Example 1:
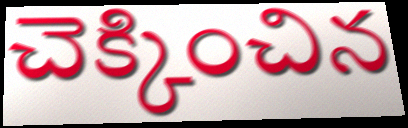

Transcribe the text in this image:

చెక్కించిన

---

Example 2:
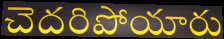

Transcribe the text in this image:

చెదరిపోయారు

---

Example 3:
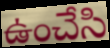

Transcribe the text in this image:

ఉంచేసి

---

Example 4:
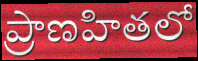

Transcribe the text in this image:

ప్రాణహితలో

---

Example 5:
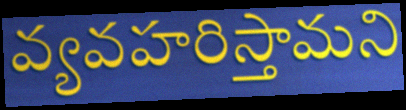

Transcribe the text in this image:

వ్యవహరిస్తామని